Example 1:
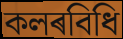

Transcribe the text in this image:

কলৰবিধি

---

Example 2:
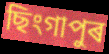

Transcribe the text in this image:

ছিংগাপুৰ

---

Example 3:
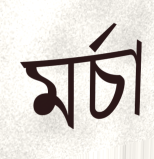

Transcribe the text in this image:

মৰ্চা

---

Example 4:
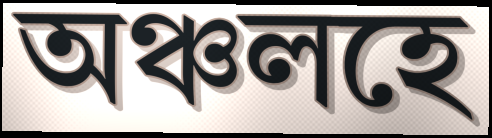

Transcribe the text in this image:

অঞ্চলহে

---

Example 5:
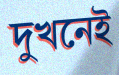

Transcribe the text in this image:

দুখনেই